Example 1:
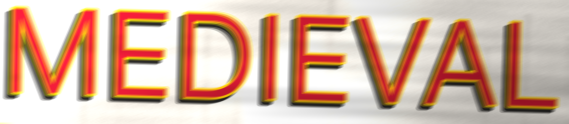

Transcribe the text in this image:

MEDIEVAL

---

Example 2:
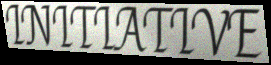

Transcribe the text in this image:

INITIATIVE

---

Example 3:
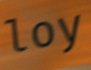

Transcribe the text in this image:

loy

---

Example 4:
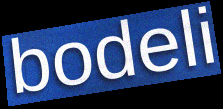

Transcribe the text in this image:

bodeli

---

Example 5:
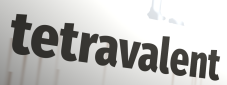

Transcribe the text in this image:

tetravalent